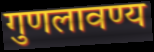
गुणलावण्य